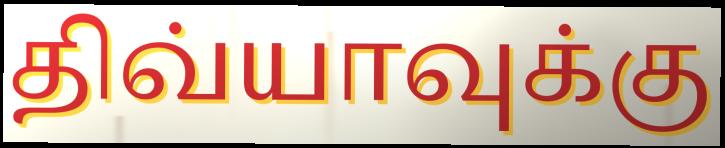
திவ்யாவுக்கு